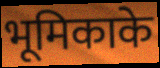
भूमिकाके